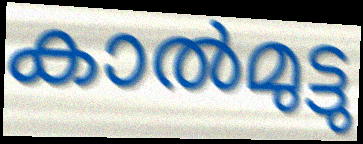
കാൽമുട്ടു